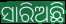
ସାରିଅଛି